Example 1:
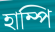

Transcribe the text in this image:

হাম্পি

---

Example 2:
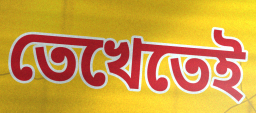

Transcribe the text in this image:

তেখেতেই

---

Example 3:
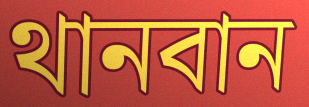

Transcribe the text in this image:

থানবান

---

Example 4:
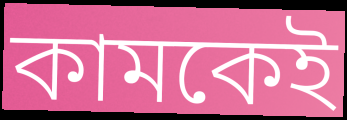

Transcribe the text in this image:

কামকেই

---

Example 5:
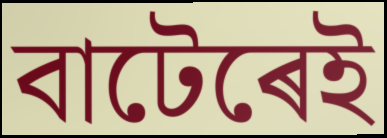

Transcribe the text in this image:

বাটেৰেই